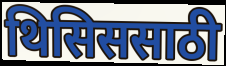
थिसिससाठी